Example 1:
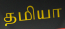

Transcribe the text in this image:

தமியா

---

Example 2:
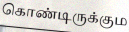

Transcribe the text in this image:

கொண்டிருக்கும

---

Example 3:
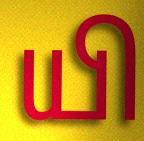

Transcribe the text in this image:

யி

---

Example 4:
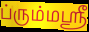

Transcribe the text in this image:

ப்ரும்மஸ்ரீ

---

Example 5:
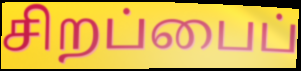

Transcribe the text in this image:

சிறப்பைப்